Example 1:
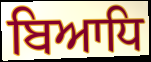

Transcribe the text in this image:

ਬਿਆਧਿ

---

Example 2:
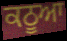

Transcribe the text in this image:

ਕਠੂਆ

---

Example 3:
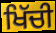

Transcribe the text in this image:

ਖਿੱਚੀ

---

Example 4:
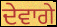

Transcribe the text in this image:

ਦੇਵਾਗੇ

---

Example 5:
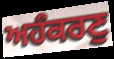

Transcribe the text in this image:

ਅਹੰਕਰਣੁ